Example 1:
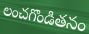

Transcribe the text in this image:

లంచగొండితనం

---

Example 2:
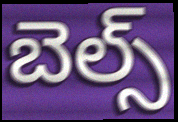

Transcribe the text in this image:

బెల్స్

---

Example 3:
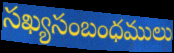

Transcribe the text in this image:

సఖ్యసంబంధములు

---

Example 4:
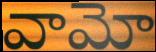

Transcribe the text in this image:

వామో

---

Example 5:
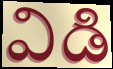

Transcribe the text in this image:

విడి